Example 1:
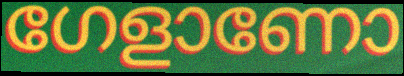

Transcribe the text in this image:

ഗേളാണോ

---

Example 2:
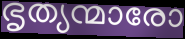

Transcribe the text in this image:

ഭൃത്യന്മാരോ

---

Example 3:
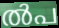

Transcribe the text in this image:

ൽപ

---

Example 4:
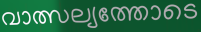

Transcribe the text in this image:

വാത്സല്യത്തോടെ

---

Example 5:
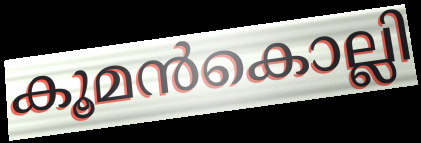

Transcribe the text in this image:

കൂമൻകൊല്ലി